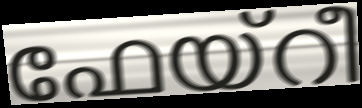
ഫേയ്റീ